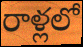
రాళ్లలో